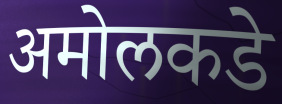
अमोलकडे